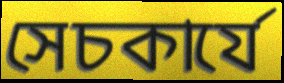
সেচকার্যে